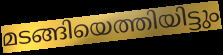
മടങ്ങിയെത്തിയിട്ടും